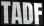
TADF